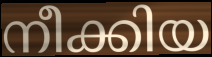
നീക്കിയ